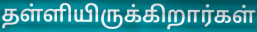
தள்ளியிருக்கிறார்கள்